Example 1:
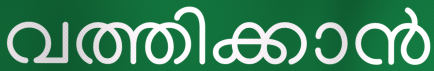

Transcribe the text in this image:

വത്തിക്കാൻ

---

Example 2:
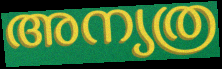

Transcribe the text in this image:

അന്യത്ര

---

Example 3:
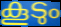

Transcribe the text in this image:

കൂടും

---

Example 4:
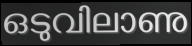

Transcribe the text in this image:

ഒടുവിലാണു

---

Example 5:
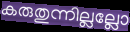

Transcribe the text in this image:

കരുതുന്നില്ലല്ലോ